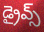
డ్రైవ్స్